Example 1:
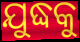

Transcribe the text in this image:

ଯୁଦ୍ଧକୁ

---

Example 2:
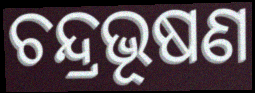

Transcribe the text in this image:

ଚନ୍ଦ୍ରଭୂଷଣ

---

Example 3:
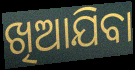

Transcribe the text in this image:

ଖିଆଯିବା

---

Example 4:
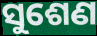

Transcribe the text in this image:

ସୁଶେଣ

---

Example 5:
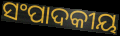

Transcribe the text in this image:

ସଂପାଦକୀୟ